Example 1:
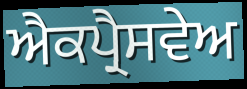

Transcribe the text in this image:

ਐਕਪ੍ਰੈਸਵੇਅ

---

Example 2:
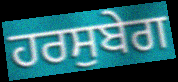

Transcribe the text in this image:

ਹਰਸੁਬੇਗ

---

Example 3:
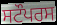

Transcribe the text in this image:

ਸਟੌਪਰਸ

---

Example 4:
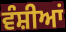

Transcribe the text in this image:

ਵੰਸ਼ੀਆਂ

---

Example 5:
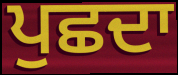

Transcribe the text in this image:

ਪੁਛਦਾ